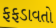
ફફડાવતો